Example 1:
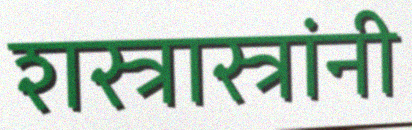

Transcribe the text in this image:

शस्त्रास्त्रांनी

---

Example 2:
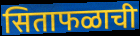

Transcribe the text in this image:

सिताफळाची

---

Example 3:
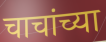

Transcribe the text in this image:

चाचांच्या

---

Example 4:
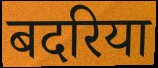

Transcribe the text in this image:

बदरिया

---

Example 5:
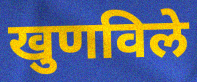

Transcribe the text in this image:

खुणविले